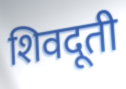
शिवदूती